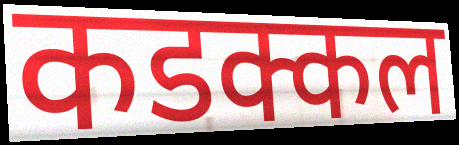
कडक्कल